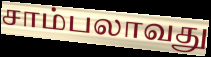
சாம்பலாவது